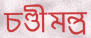
চণ্ডীমন্ত্র